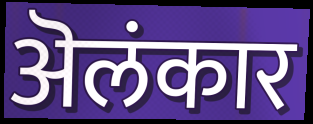
ऄलंकार